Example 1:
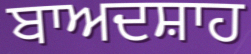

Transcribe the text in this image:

ਬਾਅਦਸ਼ਾਹ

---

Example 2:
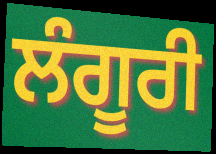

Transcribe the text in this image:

ਲੰਗੂਰੀ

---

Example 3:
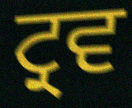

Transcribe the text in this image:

ਟ੍ਰਵ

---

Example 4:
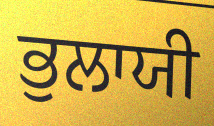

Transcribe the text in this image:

ਭੁਲਾਯੀ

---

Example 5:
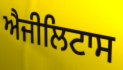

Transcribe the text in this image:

ਐਜੀਲਿਟਾਸ